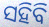
ସହିବି